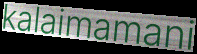
kalaimamani